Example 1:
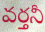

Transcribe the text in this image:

వర్తనీ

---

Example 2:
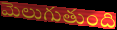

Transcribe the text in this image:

మెలుగుతుంది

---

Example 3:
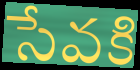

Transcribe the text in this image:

సేవకి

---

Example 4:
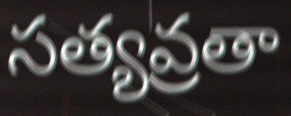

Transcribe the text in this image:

సత్యవ్రతా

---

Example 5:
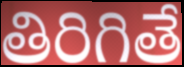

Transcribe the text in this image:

తిరిగితే